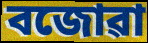
বজোৱা